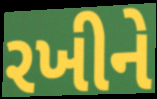
રખીને